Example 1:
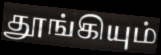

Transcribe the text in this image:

தூங்கியும்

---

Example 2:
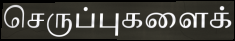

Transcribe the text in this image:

செருப்புகளைக்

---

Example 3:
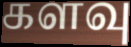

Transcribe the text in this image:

களவு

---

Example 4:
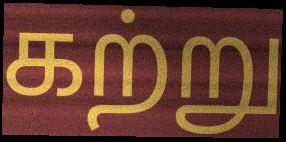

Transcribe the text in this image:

கற்று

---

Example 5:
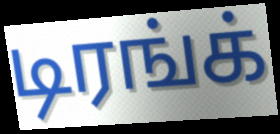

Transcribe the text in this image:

டிரங்க்